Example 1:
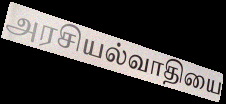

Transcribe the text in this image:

அரசியல்வாதியை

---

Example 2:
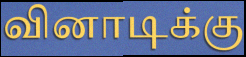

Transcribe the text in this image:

வினாடிக்கு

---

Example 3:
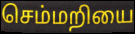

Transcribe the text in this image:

செம்மறியை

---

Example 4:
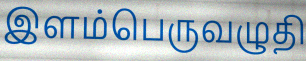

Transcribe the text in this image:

இளம்பெருவழுதி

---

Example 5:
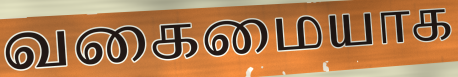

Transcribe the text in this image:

வகைமையாக